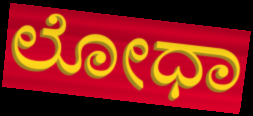
ಲೋಧಾ